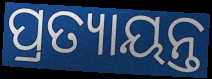
ପ୍ରତ୍ୟାୟନ୍ତ